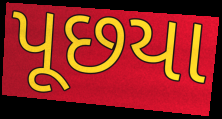
પૂછયા